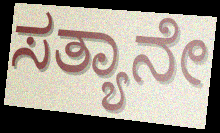
ಸತ್ಯಾನೇ